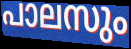
പാലസും